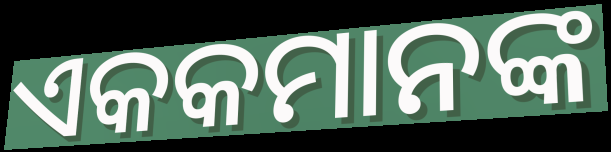
ଏକକମାନଙ୍କ